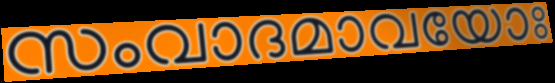
സംവാദമാവയോഃ